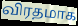
விரதமாக